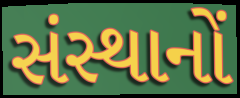
સંસ્થાનોં